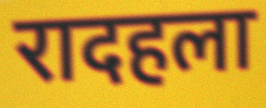
रादहला